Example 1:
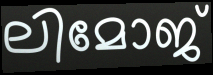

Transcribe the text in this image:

ലിമോജ്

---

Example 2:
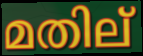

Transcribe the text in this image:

മതില്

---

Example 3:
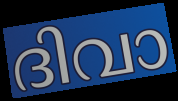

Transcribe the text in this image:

ദിവാ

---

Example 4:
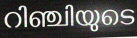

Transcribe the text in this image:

റിഞ്ചിയുടെ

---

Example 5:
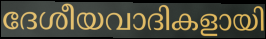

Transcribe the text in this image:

ദേശീയവാദികളായി